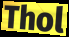
Thol